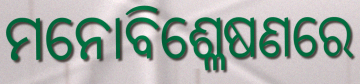
ମନୋବିଶ୍ଳେଷଣରେ